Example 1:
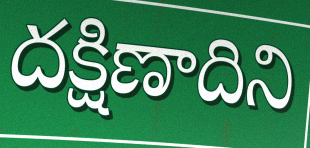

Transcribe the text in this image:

దక్షిణాదిని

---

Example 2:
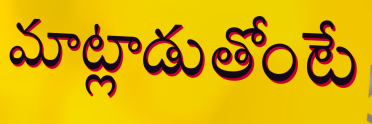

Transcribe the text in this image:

మాట్లాడుతోంటే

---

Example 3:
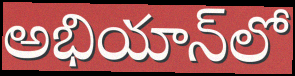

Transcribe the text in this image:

అభియాన్‌లో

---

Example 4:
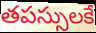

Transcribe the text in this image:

తపస్సులకే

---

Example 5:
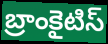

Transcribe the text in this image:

బ్రాంకైటిస్